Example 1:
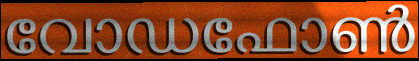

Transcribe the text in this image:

വോഡഫോൺ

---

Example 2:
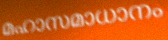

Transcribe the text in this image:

മഹാസമാധാനം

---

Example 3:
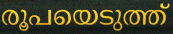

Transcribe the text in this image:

രൂപയെടുത്ത്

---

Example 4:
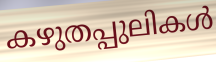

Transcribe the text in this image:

കഴുതപ്പുലികൾ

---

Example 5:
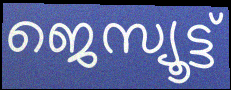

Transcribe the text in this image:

ജെസ്യൂട്ട്